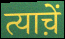
त्याच़ें